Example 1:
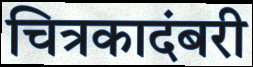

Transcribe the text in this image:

चित्रकादंबरी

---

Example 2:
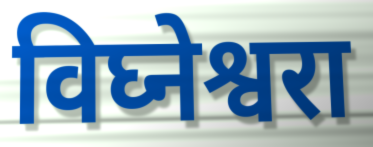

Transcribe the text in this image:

विघ्नेश्वरा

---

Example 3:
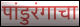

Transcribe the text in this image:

पांडुरंगाचा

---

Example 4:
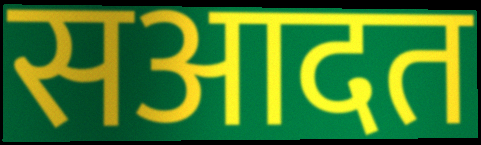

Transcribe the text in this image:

सआदत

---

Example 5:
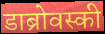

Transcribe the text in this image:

डाब्रोवस्की